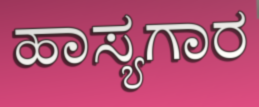
ಹಾಸ್ಯಗಾರ